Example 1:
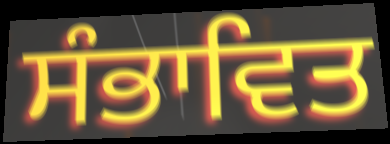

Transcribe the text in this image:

ਸੰਭਾਵਿਤ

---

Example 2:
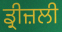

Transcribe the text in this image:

ਡ੍ਰੀਜ਼ਲੀ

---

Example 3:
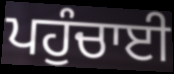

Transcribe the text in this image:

ਪਹੁੰਚਾਈ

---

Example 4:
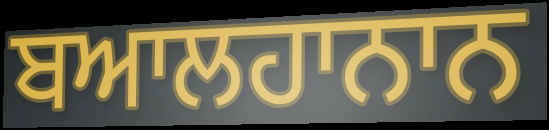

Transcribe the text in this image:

ਬਆਲਹਾਨਾਨ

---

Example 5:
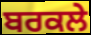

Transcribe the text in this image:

ਬਰਕਲੇ